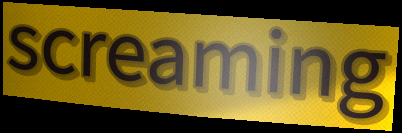
screaming